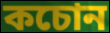
কচোন